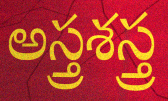
అస్త్రశస్త్ర